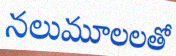
నలుమూలలతో